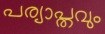
പര്യാപ്തവും